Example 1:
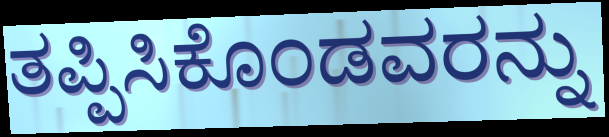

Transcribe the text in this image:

ತಪ್ಪಿಸಿಕೊಂಡವರನ್ನು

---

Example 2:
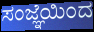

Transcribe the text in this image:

ಸಂಜ್ಞೆಯಿಂದ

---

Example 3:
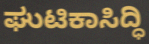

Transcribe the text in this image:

ಘುಟಿಕಾಸಿದ್ಧಿ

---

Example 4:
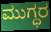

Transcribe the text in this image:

ಮುಗ್ಧರ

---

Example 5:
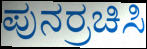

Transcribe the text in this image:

ಪುನರ್ರಚಿಸಿ